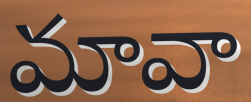
మావా